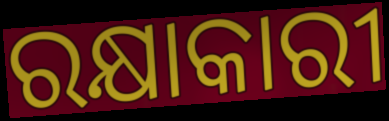
ରକ୍ଷାକାରୀ